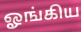
ஓங்கிய